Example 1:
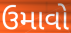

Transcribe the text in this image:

ઉમાવો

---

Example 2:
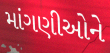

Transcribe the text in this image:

માંગણીઓને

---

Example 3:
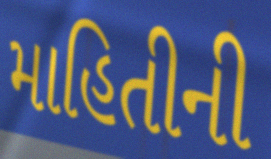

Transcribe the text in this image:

માહિતીની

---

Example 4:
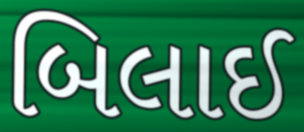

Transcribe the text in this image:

બિલાઈ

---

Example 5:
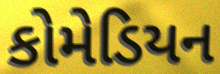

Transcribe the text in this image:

કોમેડિયન